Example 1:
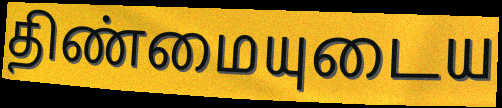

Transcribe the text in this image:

திண்மையுடைய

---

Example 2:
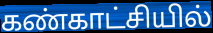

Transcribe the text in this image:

கண்காட்சியில்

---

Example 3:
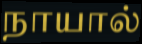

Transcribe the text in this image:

நாயால்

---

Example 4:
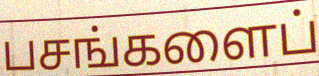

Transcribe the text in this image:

பசங்களைப்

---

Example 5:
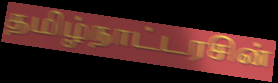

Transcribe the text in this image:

தமிழ்நாட்டரசின்